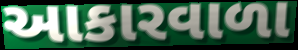
આકારવાળા